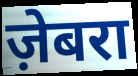
ज़ेबरा